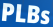
PLBs